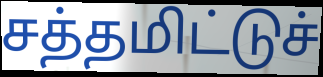
சத்தமிட்டுச்